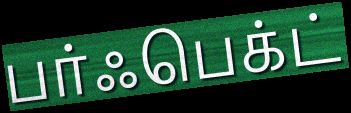
பர்ஃபெக்ட்